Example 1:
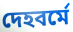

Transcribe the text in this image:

দেহবর্মে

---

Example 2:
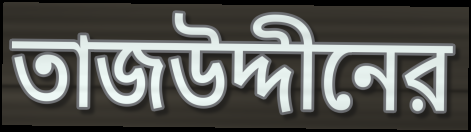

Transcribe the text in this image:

তাজউদ্দীনের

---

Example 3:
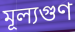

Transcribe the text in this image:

মূল্যগুণ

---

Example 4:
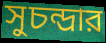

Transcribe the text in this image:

সুচন্দ্রার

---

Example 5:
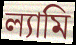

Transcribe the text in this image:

ল্যামি